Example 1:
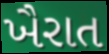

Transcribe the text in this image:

ખૈરાત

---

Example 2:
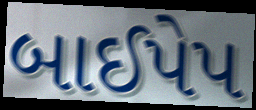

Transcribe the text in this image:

બાઈપેપ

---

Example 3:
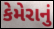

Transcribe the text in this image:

કેમેરાનું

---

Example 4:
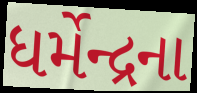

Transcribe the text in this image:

ધર્મેન્દ્રના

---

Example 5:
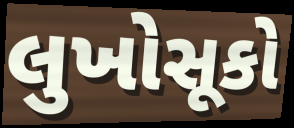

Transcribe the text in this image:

લુખોસૂકો